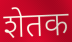
शेतक